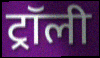
ट्रॉली